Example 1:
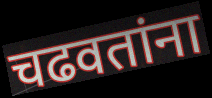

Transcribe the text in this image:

चढवतांना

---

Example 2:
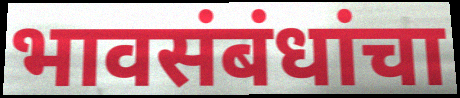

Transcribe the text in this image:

भावसंबंधांचा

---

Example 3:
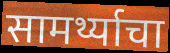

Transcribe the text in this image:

सामर्थ्याचा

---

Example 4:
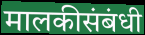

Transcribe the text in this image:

मालकीसंबंधी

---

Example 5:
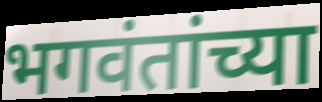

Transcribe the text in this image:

भगवंतांच्या